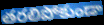
తరలిపోకుండా